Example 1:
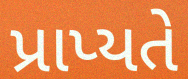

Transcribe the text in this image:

પ્રાપ્યતે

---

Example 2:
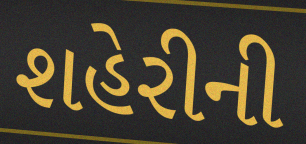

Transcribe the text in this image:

શહેરીની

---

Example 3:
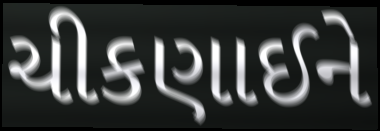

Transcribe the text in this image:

ચીકણાઈને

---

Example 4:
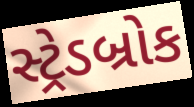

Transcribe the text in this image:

સ્ટ્રેડબ્રોક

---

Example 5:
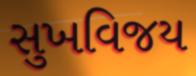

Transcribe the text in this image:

સુખવિજય